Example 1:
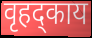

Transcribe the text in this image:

वृहद्काय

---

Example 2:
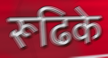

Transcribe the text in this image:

रूढिके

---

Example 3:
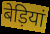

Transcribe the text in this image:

बेड़ियां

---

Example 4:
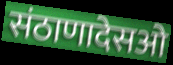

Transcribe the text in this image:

संठाणादेसओ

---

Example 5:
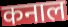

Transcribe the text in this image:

कनाल